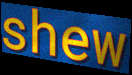
shew